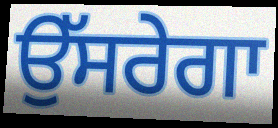
ਉੱਸਰੇਗਾ